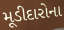
મૂડીદારોના